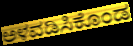
ಅಳವಡಿಸಿಕೊಂಡ